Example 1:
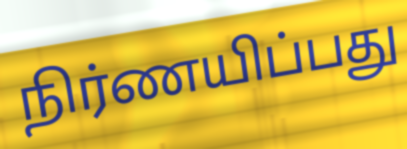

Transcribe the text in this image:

நிர்ணயிப்பது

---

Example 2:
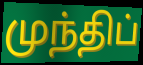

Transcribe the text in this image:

முந்திப்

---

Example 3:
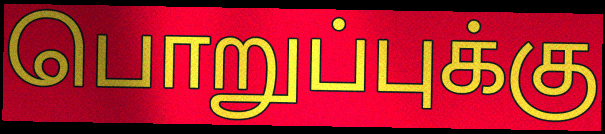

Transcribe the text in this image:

பொறுப்புக்கு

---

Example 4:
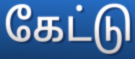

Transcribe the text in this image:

கேட்டு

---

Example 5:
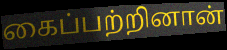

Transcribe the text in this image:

கைப்பற்றினான்